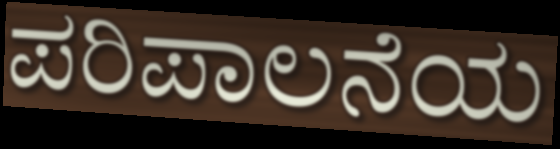
ಪರಿಪಾಲನೆಯ